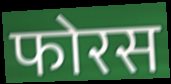
फोरस